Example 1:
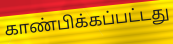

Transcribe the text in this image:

காண்பிக்கப்பட்டது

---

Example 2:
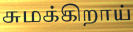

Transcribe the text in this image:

சுமக்கிறாய்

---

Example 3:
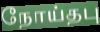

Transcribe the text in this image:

நோய்தபு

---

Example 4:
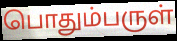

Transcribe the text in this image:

பொதும்பருள்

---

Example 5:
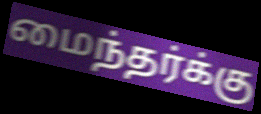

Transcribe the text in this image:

மைந்தர்க்கு